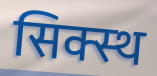
सिक्स्थ